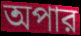
অপার